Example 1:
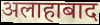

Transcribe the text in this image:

अलाहाबाद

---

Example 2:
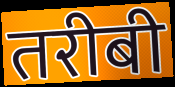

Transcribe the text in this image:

तरीबी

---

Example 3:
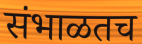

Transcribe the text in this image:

संभाळतच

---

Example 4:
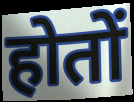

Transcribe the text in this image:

होतों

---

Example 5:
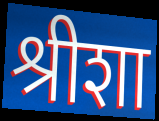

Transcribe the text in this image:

श्रीशा